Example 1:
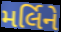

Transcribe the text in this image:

મર્લિને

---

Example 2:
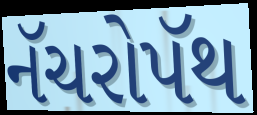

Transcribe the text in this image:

નૅચરોપૅથ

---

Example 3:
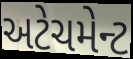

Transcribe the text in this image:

અટેચમેન્ટ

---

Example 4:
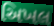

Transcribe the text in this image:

અિખલ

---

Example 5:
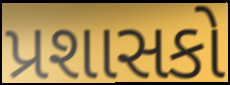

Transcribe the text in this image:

પ્રશાસકો